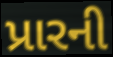
પ્રારની